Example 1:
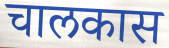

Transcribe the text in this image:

चालकास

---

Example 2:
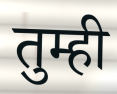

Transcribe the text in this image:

तुम्ही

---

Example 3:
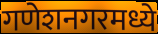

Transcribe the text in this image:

गणेशनगरमध्ये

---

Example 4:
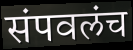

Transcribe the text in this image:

संपवलंच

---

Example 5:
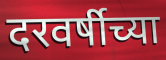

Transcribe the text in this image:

दरवर्षीच्या